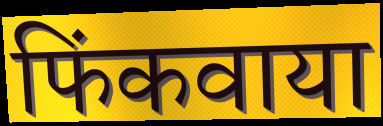
फिंकवाया